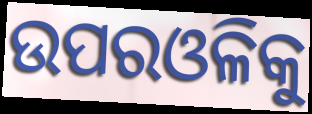
ଉପରଓଳିକୁ